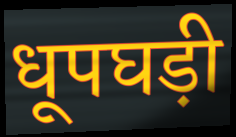
धूपघड़ी